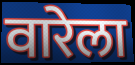
वारेला